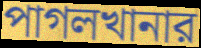
পাগলখানার